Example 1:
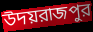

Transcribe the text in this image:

উদয়রাজপুর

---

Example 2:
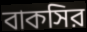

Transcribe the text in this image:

বাকসির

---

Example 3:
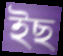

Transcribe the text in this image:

ইছ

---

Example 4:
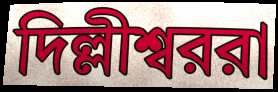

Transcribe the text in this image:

দিল্লীশ্বররা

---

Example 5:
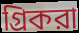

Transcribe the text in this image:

গ্রিকরা